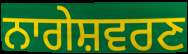
ਨਾਗੇਸ਼ਵਰਣ